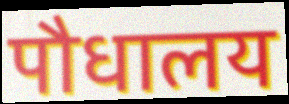
पौधालय